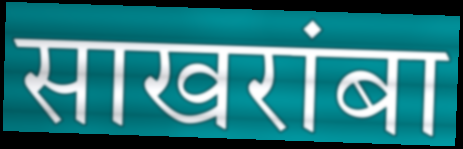
साखरांबा